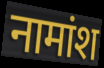
नामांश